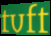
tuft